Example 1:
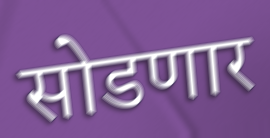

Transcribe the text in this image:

सोडणार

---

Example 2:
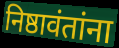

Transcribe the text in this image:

निष्ठावंतांना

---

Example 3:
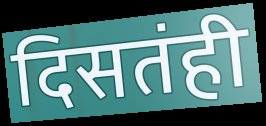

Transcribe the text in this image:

दिसतंही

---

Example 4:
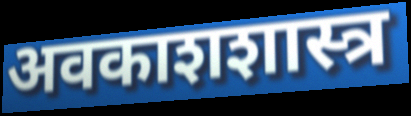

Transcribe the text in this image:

अवकाशशास्त्र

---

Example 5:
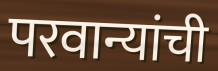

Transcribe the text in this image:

परवान्यांची